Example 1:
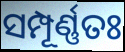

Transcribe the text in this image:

ସମ୍ପୂର୍ଣ୍ଣତଃ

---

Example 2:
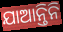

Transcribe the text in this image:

ଯାଆନ୍ତିନି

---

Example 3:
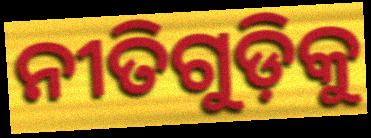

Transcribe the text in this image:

ନୀତିଗୁଡ଼ିକୁ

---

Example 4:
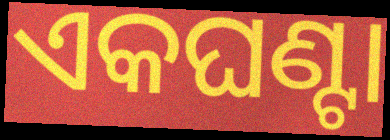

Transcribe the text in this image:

ଏକଘଣ୍ଟା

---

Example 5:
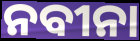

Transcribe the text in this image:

ନବୀନା